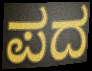
ಪದ